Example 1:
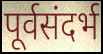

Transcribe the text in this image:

पूर्वसंदर्भ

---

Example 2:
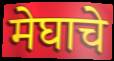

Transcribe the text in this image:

मेघाचे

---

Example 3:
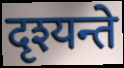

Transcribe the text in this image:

दृश्यन्ते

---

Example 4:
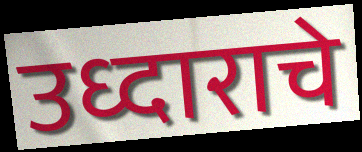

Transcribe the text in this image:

उध्दाराचे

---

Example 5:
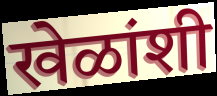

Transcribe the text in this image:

खेळांशी